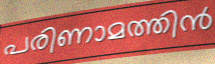
പരിണാമത്തിൻ